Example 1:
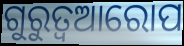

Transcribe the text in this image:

ଗୁରୁତ୍ଵଆରୋପ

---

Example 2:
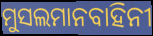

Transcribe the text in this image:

ମୁସଲମାନବାହିନୀ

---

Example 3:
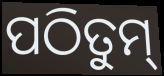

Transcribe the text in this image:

ପଠିତୁମ୍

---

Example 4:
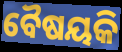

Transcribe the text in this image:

ବୈଷୟକି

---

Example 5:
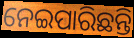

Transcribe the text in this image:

ନେଇପାରିଛନ୍ତି